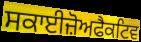
ਸਕਾਈਜ਼ੋਅਫੈਕਟਿਵ